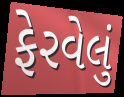
ફેરવેલું